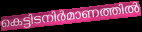
കെട്ടിടനിർമാണത്തിൽ